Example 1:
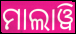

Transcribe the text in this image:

ମାଲାୱି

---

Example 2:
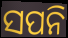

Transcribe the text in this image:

ସପନି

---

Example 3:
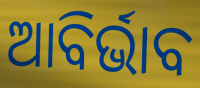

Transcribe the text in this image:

ଆବିର୍ଭାବ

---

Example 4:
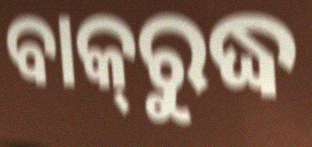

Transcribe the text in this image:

ବାକ୍‌ରୁଦ୍ଧ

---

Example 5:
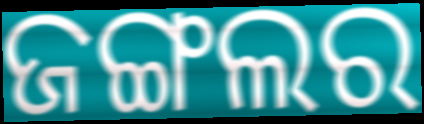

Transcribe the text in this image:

ଜଙ୍ଗଲର